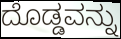
ದೊಡ್ಡವನ್ನು